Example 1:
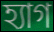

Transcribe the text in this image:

হ্যাগ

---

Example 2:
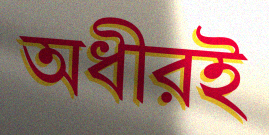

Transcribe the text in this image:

অধীরই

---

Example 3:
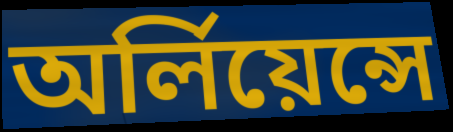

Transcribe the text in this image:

অর্লিয়েন্সে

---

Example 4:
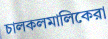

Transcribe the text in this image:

চালকলমালিকেরা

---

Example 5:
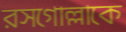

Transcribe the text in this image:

রসগোল্লাকে